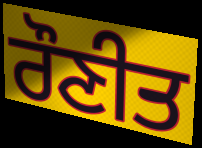
ਰੌਣੀਤ